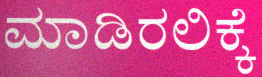
ಮಾಡಿರಲಿಕ್ಕೆ